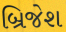
બ્રિજેશ